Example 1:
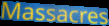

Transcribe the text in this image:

Massacres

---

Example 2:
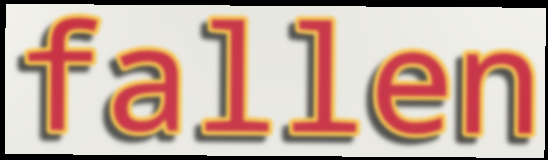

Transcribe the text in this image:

fallen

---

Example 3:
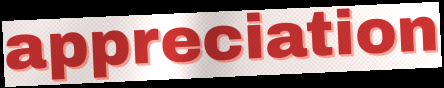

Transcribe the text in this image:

appreciation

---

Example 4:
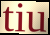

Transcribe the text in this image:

tiu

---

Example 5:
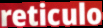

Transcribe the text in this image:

reticulo